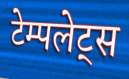
टेम्पलेट्स